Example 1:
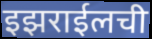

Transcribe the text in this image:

इझराईलची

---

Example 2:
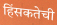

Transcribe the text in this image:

हिंसकतेची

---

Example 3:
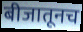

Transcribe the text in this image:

बीजातूनच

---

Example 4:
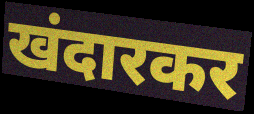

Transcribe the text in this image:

खंदारकर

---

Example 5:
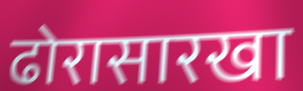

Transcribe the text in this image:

ढोरासारखा